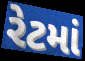
રેટમાં